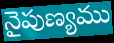
నైపుణ్యము